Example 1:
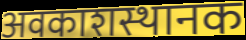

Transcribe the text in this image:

अवकाशस्थानक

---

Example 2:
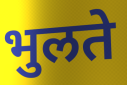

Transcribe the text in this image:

भुलते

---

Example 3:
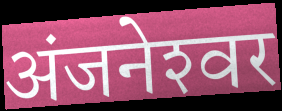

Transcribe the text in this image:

अंजनेश्वर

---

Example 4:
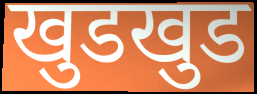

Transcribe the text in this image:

खुडखुड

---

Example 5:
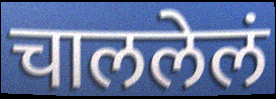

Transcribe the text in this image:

चाललेलं